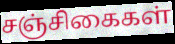
சஞ்சிகைகள்